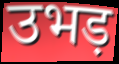
उभड़